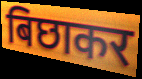
बिछाकर